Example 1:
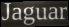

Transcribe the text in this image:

Jaguar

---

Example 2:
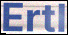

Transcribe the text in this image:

Ertl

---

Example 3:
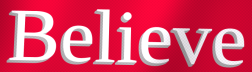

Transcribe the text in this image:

Believe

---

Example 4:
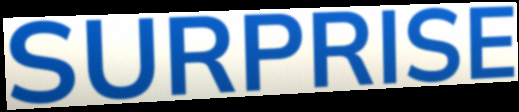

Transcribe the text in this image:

SURPRISE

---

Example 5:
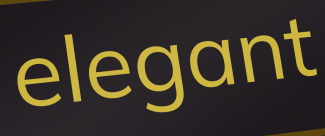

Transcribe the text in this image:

elegant